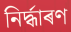
নিৰ্দ্ধাৰণ